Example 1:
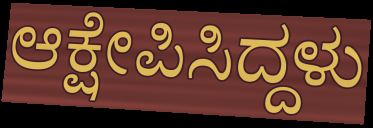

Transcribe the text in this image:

ಆಕ್ಷೇಪಿಸಿದ್ದಳು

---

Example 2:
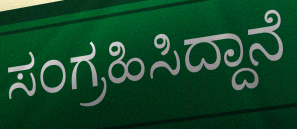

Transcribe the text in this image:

ಸಂಗ್ರಹಿಸಿದ್ದಾನೆ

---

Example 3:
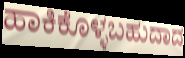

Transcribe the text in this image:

ಹಾಕಿಕೊಳ್ಳಬಹುದಾದ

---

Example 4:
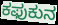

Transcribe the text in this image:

ಕಫುಕುನ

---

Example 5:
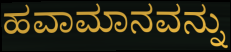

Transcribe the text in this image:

ಹವಾಮಾನವನ್ನು